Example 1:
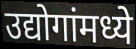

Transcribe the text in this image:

उद्योगांमध्ये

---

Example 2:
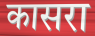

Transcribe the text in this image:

कासरा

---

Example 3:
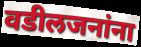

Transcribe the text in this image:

वडीलजनांना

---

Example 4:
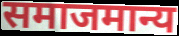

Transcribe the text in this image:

समाजमान्य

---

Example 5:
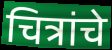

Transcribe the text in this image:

चित्रांचे